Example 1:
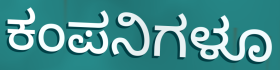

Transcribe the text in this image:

ಕಂಪನಿಗಳೂ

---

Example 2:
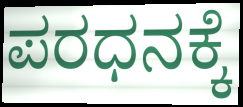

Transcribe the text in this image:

ಪರಧನಕ್ಕೆ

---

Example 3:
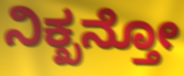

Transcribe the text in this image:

ನಿಕ್ಖನ್ತೋ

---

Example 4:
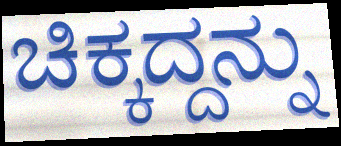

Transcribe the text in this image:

ಚಿಕ್ಕದ್ದನ್ನು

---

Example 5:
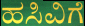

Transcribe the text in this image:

ಹಸಿವಿಗೆ